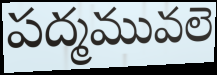
పద్మమువలె